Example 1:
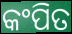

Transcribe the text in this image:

କଂପିତ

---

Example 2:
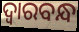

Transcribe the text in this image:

ଦ୍ବାରବନ୍ଧ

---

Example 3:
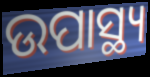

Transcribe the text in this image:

ଉପାସ୍ଥ୍ୟ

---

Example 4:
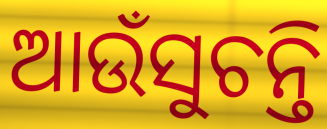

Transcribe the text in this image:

ଆଉଁସୁଚନ୍ତି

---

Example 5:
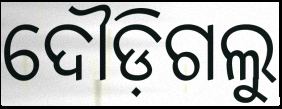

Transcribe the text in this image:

ଦୌଡ଼ିଗଲୁ